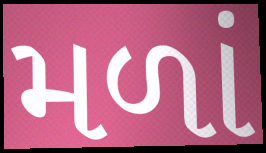
મળાં